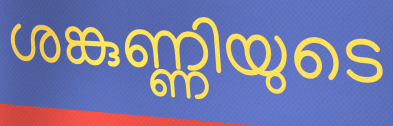
ശങ്കുണ്ണിയുടെ